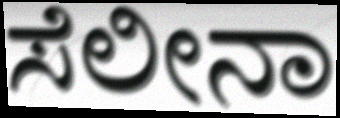
ಸೆಲೀನಾ